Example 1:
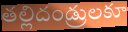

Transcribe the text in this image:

తల్లిదండ్రులకూ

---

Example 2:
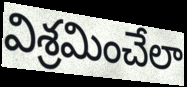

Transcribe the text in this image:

విశ్రమించేలా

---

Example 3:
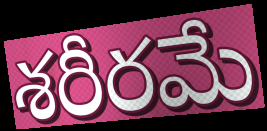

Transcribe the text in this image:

శరీరమే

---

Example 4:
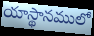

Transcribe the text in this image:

యాస్థానములో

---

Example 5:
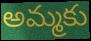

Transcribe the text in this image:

అమ్మకు